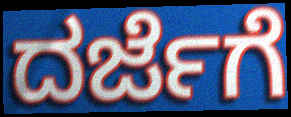
ದರ್ಜೆಗೆ